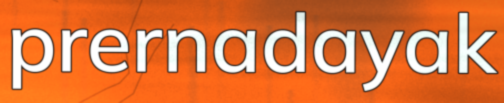
prernadayak